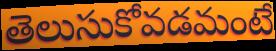
తెలుసుకోవడమంటే